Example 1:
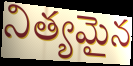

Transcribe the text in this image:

నిత్యమైన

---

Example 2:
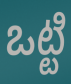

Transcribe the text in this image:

ఒట్టి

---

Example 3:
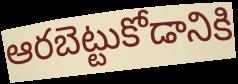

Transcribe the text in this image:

ఆరబెట్టుకోడానికి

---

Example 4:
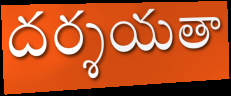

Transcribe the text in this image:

దర్శయతా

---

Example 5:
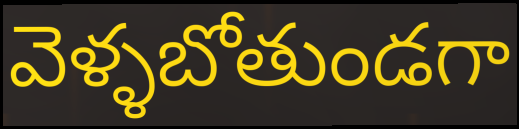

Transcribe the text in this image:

వెళ్ళబోతుండగా